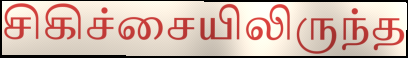
சிகிச்சையிலிருந்த